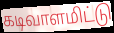
கடிவாளமிட்டு